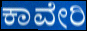
ಕಾವೇರಿ